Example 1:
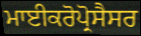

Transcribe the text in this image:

ਮਾਈਕਰੋਪ੍ਰੋਸੈਸਰ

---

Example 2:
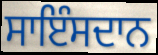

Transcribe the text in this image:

ਸਾਇੰਸਦਾਨ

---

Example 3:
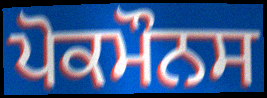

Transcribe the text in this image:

ਪੋਕਮੌਨਸ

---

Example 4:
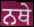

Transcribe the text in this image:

ਨਥੇ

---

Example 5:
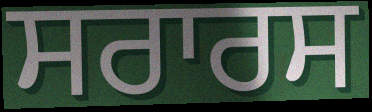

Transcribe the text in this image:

ਸਰਾਰਸ